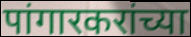
पांगारकरांच्या